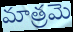
మాత్రమె